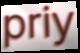
priy